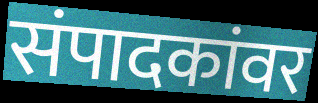
संपादकांवर